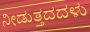
ನೀಡುತ್ತದದಳು